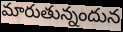
మారుతున్నందున